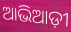
ଆଭିଆଡ଼ୀ